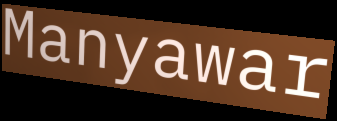
Manyawar